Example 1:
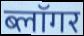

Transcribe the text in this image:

ब्लॉगर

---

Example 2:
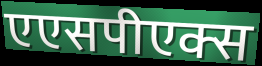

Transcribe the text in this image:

एएसपीएक्स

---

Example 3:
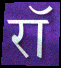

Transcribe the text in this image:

रॉ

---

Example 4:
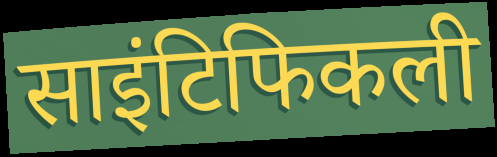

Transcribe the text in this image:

साइंटिफिकली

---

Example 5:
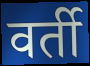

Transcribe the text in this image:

वर्ती